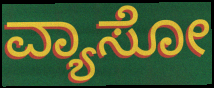
ವ್ಯಾಸೋ